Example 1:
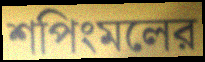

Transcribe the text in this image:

শপিংমলের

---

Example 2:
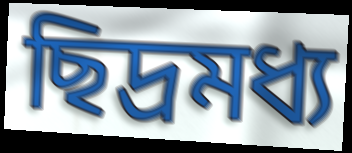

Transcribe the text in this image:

ছিদ্রমধ্য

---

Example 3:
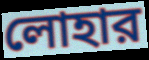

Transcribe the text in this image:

লোহার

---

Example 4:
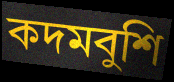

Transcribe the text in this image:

কদমবুশি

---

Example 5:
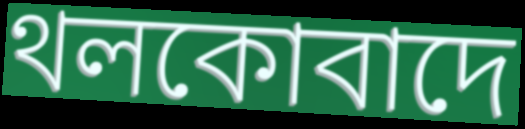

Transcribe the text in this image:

থলকোবাদে